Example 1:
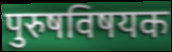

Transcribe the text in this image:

पुरुषविषयक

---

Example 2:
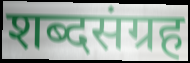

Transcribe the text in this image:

शब्दसंग्रह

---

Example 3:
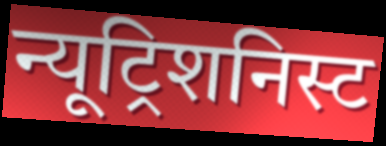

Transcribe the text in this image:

न्‍यूट्रिशनिस्‍ट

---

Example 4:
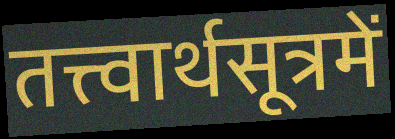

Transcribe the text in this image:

तत्त्वार्थसूत्रमें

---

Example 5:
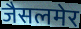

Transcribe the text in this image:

जैसलमेर